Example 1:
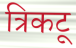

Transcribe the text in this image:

त्रिकटू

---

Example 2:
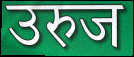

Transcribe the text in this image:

उरुज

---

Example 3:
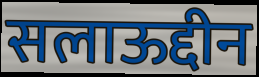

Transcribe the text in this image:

सलाऊद्दीन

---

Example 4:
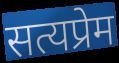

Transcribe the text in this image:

सत्यप्रेम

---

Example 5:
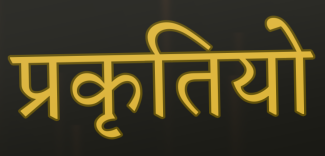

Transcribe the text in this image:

प्रकृतियो